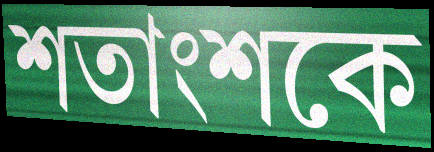
শতাংশকে